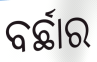
ବର୍ଛାର